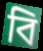
বি